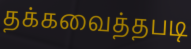
தக்கவைத்தபடி